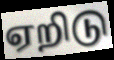
ஏறிடு